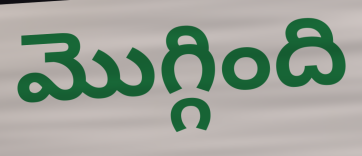
మొగ్గింది